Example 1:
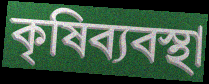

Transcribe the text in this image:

কৃষিব্যবস্থা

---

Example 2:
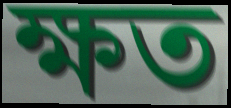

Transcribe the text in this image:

ক্ষত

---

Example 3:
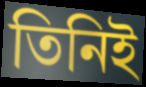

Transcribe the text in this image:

তিনিই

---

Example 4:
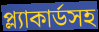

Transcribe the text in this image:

প্ল্যাকার্ডসহ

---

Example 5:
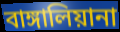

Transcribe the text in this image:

বাঙ্গালিয়ানা